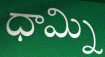
ధామ్ని